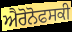
ਐਰੋਨੋਫਸਕੀ